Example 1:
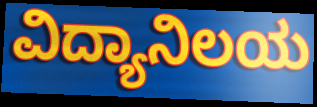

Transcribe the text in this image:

ವಿದ್ಯಾನಿಲಯ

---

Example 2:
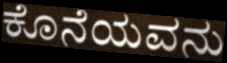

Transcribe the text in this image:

ಕೊನೆಯವನು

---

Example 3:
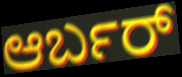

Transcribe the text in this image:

ಆರ್ಬರ್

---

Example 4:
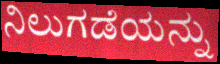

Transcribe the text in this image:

ನಿಲುಗಡೆಯನ್ನು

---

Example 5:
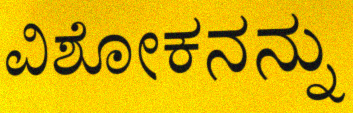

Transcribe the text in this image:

ವಿಶೋಕನನ್ನು